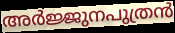
അർജ്ജുനപുത്രൻ